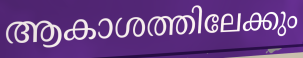
ആകാശത്തിലേക്കും